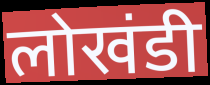
लोखंडी